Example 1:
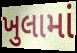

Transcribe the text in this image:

ખુલામાં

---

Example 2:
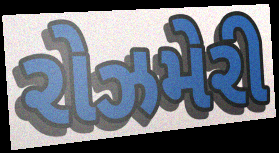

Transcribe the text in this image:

રોઝમેરી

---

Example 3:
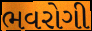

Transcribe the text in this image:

ભવરોગી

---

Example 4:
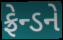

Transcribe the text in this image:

ફ્રેન્ડને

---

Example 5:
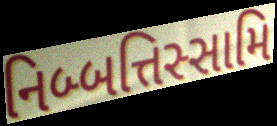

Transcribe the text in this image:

નિબ્બત્તિસ્સામિ